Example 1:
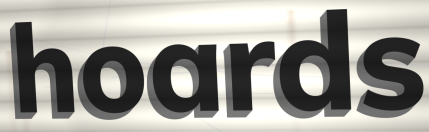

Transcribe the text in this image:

hoards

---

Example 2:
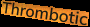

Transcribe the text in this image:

Thrombotic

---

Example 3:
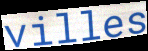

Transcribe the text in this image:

villes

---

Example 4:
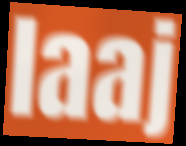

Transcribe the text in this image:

laaj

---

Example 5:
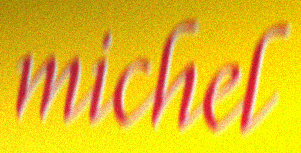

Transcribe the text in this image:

michel